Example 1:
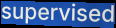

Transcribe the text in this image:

supervised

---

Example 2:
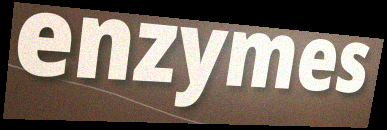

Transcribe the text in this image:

enzymes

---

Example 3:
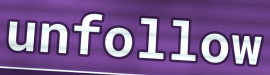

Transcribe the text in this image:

unfollow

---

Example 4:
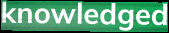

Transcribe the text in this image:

knowledged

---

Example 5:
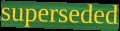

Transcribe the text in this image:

superseded